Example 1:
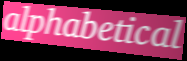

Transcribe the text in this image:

alphabetical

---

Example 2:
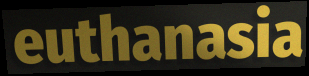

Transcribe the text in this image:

euthanasia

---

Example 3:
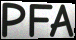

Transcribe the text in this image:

PFA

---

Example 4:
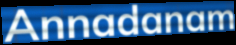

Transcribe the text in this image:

Annadanam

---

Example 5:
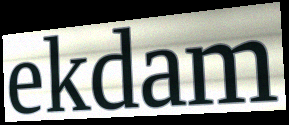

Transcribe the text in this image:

ekdam